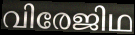
വിരേജിഥ